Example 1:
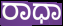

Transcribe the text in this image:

ರಾಧಾ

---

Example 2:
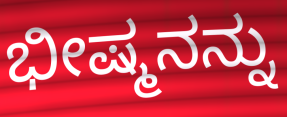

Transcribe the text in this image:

ಭೀಷ್ಮನನ್ನು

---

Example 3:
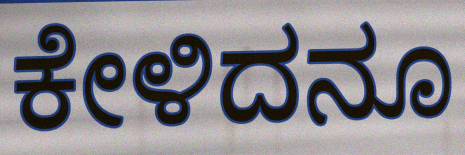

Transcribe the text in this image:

ಕೇಳಿದನೂ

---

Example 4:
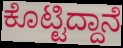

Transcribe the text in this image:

ಕೊಟ್ಟಿದ್ದಾನೆ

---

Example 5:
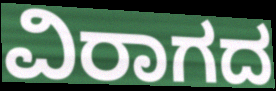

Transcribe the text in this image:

ವಿರಾಗದ